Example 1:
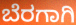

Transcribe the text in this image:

ಬೆರಗಾಗಿ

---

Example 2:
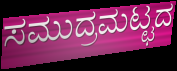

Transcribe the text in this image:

ಸಮುದ್ರಮಟ್ಟದ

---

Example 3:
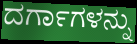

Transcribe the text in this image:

ದರ್ಗಾಗಳನ್ನು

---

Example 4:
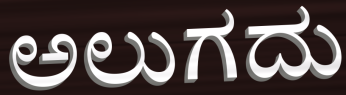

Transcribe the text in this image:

ಅಲುಗದು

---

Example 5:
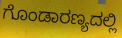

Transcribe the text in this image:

ಗೊಂಡಾರಣ್ಯದಲ್ಲಿ